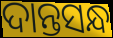
ଦାନ୍ତସନ୍ଧ